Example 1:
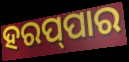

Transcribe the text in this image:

ହରପ୍‌ପାର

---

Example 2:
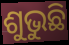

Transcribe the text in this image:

ଶୁଭୁଛି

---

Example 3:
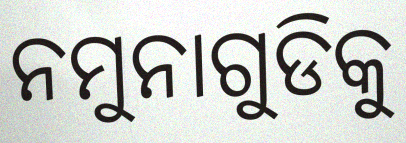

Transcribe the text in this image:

ନମୁନାଗୁଡିକୁ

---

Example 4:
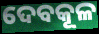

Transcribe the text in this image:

ଦେବକୂଳ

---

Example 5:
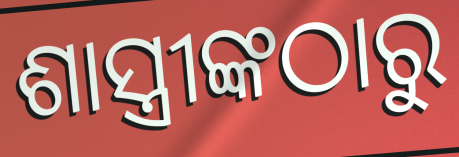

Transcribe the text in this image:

ଶାସ୍ତ୍ରୀଙ୍କଠାରୁ